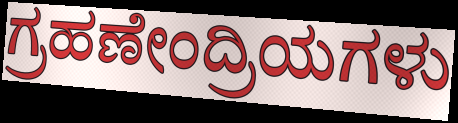
ಗ್ರಹಣೇಂದ್ರಿಯಗಳು